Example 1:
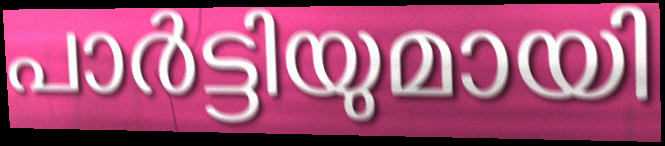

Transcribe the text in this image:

പാർട്ടിയുമായി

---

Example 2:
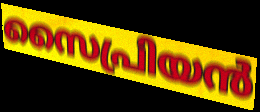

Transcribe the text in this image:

സൈപ്രിയൻ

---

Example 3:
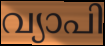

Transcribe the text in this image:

വ്യാപി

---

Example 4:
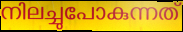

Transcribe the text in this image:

നിലച്ചുപോകുന്നത്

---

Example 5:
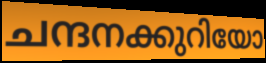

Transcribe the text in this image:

ചന്ദനക്കുറിയോ